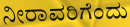
ನೀರಾವರಿಗೆಂದು